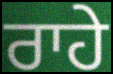
ਰਾਹੇ